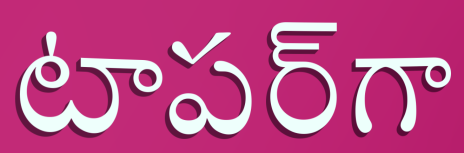
టాపర్‌గా